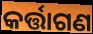
କର୍ତ୍ତାଗଣ